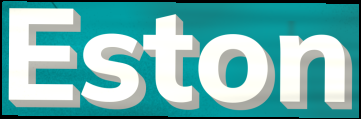
Eston